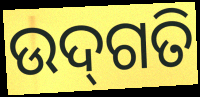
ଉଦ୍‌ଗତି